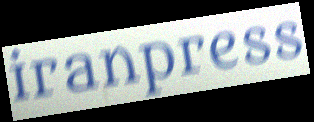
iranpress